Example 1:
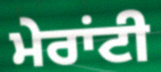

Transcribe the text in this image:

ਮੇਰਾਂਟੀ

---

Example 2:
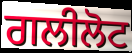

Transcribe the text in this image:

ਗਲੀਲੋਟ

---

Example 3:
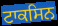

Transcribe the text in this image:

ਟਾਕਸਿਨ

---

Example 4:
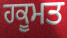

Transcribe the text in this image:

ਹਕੂਮਤ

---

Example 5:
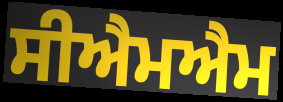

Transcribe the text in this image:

ਸੀਐਮਐਮ